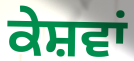
ਕੇਸ਼ਵਾਂ